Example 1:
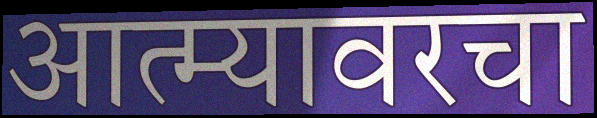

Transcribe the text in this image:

आत्म्यावरचा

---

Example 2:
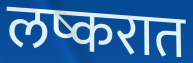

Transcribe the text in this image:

लष्करात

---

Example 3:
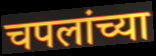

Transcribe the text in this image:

चपलांच्या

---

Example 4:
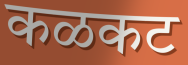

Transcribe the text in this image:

कळकट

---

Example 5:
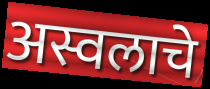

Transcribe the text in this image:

अस्वलाचे